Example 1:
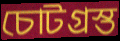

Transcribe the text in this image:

চোটগ্রস্ত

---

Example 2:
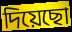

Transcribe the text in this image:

দিয়েছো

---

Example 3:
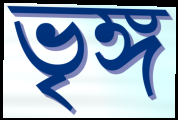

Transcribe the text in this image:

ভৃঙ্গ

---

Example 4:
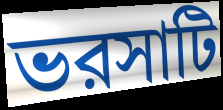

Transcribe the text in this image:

ভরসাটি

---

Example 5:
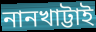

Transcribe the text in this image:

নানখাট্টাই